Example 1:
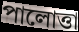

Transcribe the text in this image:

পালোত্তা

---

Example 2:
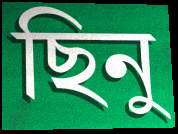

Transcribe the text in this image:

ছিনু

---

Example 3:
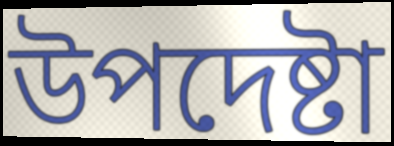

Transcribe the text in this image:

উপদেষ্টা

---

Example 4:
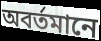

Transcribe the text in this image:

অবর্তমানে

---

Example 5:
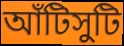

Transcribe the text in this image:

আঁটিসুটি